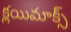
క్లయిమాక్స్